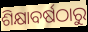
ଶିକ୍ଷାବର୍ଷଠାରୁ